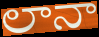
లానా